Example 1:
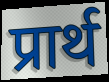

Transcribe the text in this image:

प्रार्थ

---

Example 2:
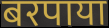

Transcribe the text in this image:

बरपाया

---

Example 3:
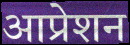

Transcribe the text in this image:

आप्रेशन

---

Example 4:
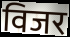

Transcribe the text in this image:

विजर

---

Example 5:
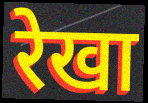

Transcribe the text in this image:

रेखा